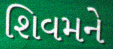
શિવમને